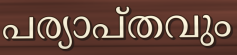
പര്യാപ്തവും